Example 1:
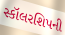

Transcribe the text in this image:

સ્કૉલરશિપની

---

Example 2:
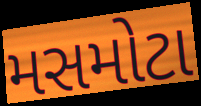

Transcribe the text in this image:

મસમોટા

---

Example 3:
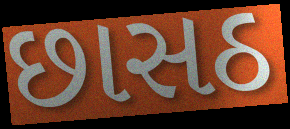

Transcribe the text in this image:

છાસઠ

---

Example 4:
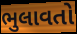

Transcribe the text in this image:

ભુલાવતો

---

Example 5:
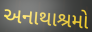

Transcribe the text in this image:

અનાથાશ્રમો